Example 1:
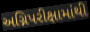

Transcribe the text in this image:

અગ્નિપરીક્ષામાંથી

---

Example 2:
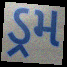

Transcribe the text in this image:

ડ્રમ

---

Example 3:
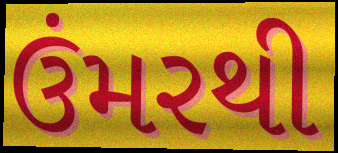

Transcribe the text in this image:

ઉંમરથી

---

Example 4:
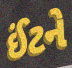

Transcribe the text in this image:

ઈંટને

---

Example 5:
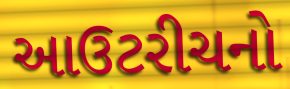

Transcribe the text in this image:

આઉટરીચનો